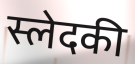
स्लेदकी